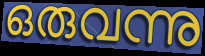
ഒരുവന്നു